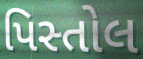
પિસ્તોલ